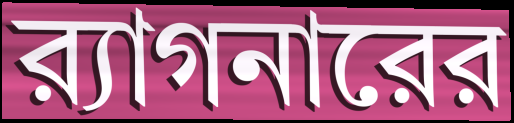
র‍্যাগনারের